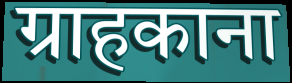
ग्राहकाना